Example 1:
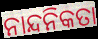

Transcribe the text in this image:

ନାନ୍ଦନିକତା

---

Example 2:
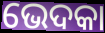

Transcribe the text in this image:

ଭେଦକା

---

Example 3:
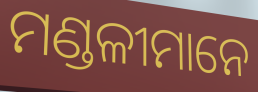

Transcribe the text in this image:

ମଣ୍ଡଳୀମାନେ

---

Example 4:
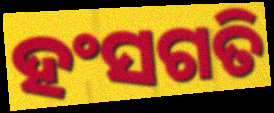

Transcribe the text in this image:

ହଂସଗତି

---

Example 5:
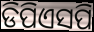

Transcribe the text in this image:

ଡିପିଏସପି